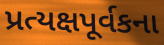
પ્રત્યક્ષપૂર્વકના